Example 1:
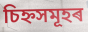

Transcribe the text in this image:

চিহ্নসমূহৰ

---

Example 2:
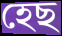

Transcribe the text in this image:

হেছ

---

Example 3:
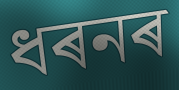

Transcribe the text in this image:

ধৰনৰ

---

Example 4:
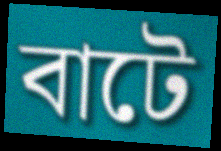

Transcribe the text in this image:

বাটে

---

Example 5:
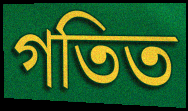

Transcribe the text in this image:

গতিত